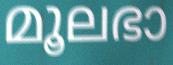
മൂലഭാ